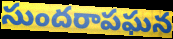
సుందరాపఘన